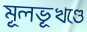
মূলভূখণ্ডে